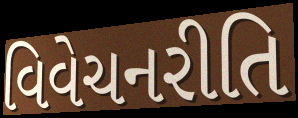
વિવેચનરીતિ